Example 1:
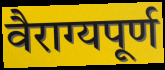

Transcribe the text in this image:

वैराग्यपूर्ण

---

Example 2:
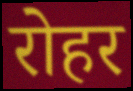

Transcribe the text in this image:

रोहर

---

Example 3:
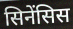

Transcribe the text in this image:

सिनेंसिस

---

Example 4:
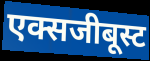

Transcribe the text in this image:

एक्सजीबूस्ट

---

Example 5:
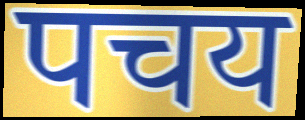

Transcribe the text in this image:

पचय